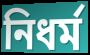
নিধর্ম